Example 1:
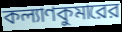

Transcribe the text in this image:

কল্যাণকুমারের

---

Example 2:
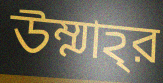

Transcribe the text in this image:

উম্মাহ্‌র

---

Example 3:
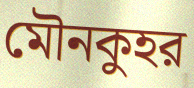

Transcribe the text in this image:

মৌনকুহর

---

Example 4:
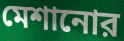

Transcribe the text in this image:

মেশানোর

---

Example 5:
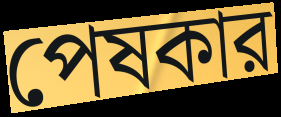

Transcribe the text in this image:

পেষকার